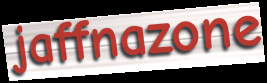
jaffnazone